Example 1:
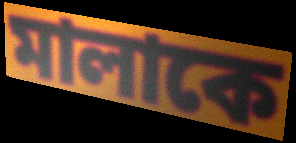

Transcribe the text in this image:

মালাকে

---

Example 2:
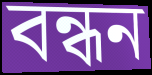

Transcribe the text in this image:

বন্ধন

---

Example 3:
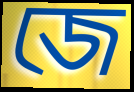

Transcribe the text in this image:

জে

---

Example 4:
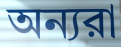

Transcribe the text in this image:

অন্যরা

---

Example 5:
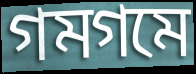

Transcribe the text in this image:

গমগমে